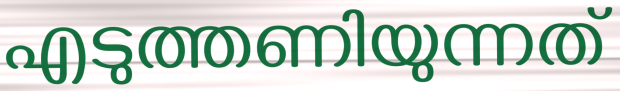
എടുത്തണിയുന്നത്